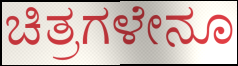
ಚಿತ್ರಗಳೇನೂ